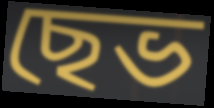
ছেভ